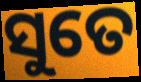
ସୁତେ